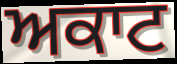
ਅਕਾਟ